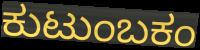
ಕುಟುಂಬಕಂ